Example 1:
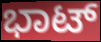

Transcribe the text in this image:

ಭಾಟ್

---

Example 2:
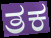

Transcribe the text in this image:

ತಕ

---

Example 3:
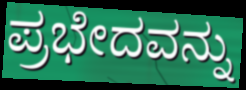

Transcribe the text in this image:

ಪ್ರಭೇದವನ್ನು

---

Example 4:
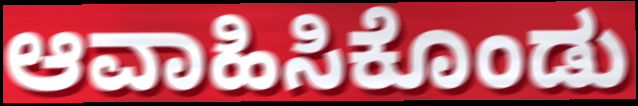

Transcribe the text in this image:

ಆವಾಹಿಸಿಕೊಂಡು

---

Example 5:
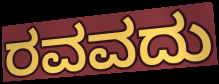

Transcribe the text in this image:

ರವವದು